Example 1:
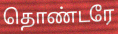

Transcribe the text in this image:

தொண்டரே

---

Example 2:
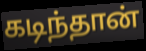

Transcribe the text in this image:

கடிந்தான்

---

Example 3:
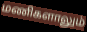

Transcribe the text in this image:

மணிகளாலும்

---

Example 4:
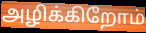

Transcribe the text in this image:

அழிக்கிறோம்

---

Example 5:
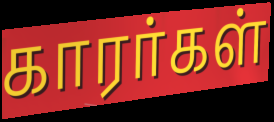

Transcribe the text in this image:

காரர்கள்